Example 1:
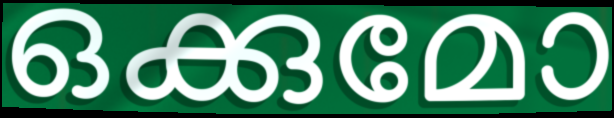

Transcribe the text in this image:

ഒക്കുമോ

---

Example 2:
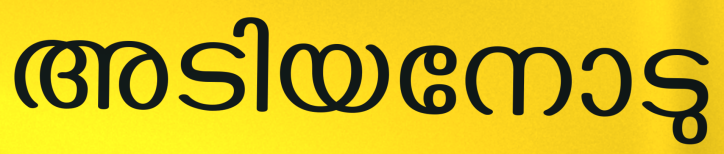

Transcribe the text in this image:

അടിയനോടു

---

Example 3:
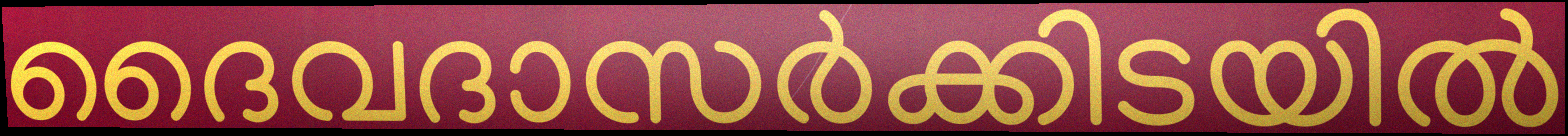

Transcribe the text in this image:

ദൈവദാസർക്കിടയിൽ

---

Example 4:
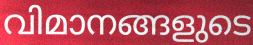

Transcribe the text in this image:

വിമാനങ്ങളുടെ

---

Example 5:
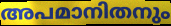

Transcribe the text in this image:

അപമാനിതനും